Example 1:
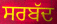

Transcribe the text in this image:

ਸਰਬੱਦ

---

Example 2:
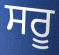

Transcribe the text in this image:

ਸਰੂ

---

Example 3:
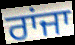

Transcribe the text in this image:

ਰਾਂਜਾ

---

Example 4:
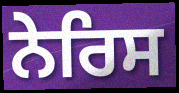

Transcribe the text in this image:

ਨੇਰਿਸ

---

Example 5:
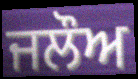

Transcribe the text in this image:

ਜਲੌਅ